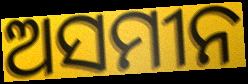
ଅସମୀନ